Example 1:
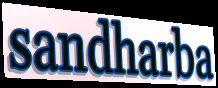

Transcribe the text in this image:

sandharba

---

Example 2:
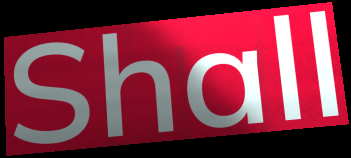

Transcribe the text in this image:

Shall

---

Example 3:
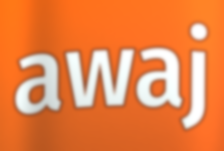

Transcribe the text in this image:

awaj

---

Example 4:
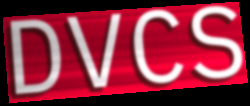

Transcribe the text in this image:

DVCS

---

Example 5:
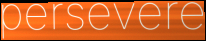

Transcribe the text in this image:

persevere